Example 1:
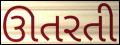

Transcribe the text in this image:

ઊતરતી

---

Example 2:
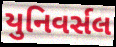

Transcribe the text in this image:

યુનિવર્સલ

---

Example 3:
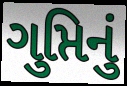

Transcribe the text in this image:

ગુપ્તિનું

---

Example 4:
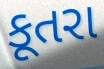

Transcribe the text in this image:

કૂતરા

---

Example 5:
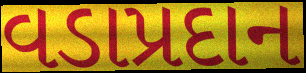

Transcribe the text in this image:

વડાપ્રદાન